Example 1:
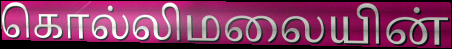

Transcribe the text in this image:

கொல்லிமலையின்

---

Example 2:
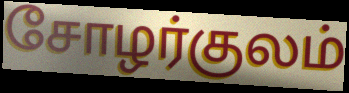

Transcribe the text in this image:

சோழர்குலம்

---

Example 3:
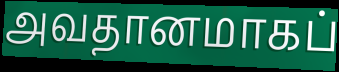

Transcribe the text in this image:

அவதானமாகப்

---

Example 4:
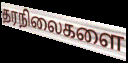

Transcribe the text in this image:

தரநிலைகளை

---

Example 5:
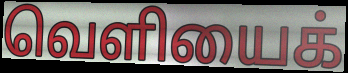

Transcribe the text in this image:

வெளியைக்